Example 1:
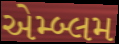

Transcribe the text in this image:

એમ્બ્લમ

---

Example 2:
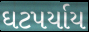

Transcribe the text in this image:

ઘટપર્યાય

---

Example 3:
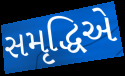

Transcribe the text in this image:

સમૃદ્ધિએ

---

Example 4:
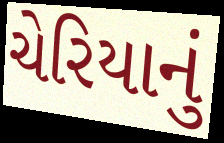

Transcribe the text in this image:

ચેરિયાનું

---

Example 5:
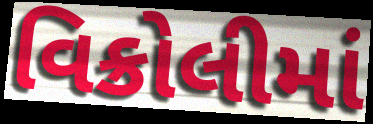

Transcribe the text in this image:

વિક્રોલીમાં